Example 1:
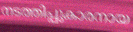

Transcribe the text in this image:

നടത്തിപ്പുകാരനായ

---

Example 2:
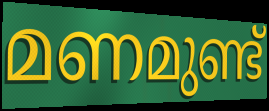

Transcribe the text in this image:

മണമുണ്ട്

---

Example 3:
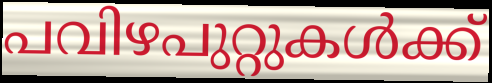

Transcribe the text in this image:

പവിഴപുറ്റുകൾക്ക്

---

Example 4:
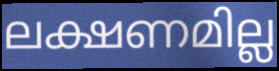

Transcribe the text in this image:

ലക്ഷണമില്ല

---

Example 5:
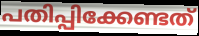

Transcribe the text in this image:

പതിപ്പിക്കേണ്ടത്